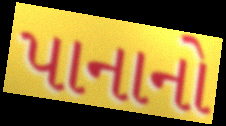
પાનાનો